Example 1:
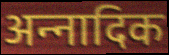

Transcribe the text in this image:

अन्नादिक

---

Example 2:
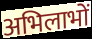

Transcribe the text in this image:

अभिलाभों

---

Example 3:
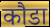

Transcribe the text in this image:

कौडा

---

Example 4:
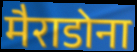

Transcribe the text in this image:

मैराडोना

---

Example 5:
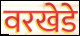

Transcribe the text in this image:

वरखेडे